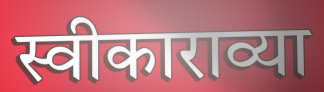
स्वीकाराव्या